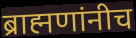
ब्राह्मणांनीच